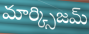
మార్క్సిజమ్